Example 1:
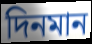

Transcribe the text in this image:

দিনমান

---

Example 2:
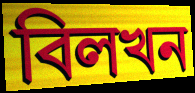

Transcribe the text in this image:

বিলখন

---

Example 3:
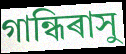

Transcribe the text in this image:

গান্ধিৰাসু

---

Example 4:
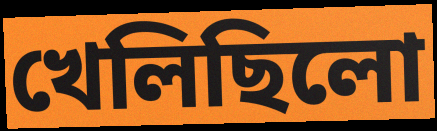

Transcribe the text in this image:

খেলিছিলো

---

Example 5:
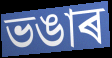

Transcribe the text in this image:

ভঙাৰ